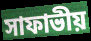
সাফাভীয়